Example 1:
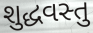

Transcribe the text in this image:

શુદ્ધવસ્તુ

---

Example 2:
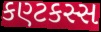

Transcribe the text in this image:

કણ્ટકસ્સ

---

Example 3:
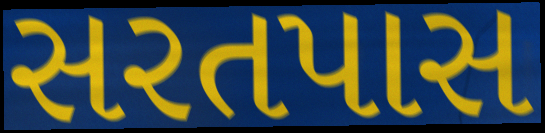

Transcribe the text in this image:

સરતપાસ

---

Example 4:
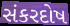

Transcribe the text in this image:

સંકરદોષ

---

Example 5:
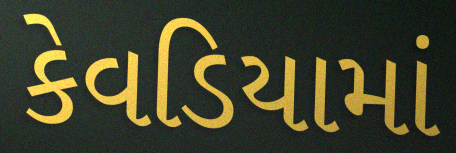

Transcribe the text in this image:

કેવડિયામાં